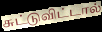
சுட்டுவிட்டால்